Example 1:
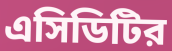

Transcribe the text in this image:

এসিডিটির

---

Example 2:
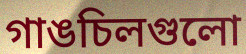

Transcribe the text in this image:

গাঙচিলগুলো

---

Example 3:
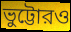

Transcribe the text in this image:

ভুট্টোরও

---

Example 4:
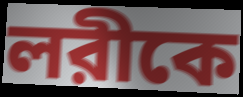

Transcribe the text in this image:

লরীকে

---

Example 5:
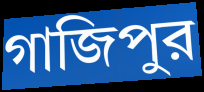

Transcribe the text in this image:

গাজিপুর